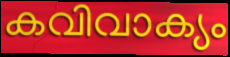
കവിവാക്യം